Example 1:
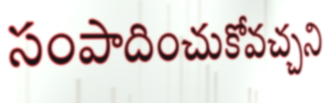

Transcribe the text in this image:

సంపాదించుకోవచ్చని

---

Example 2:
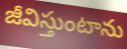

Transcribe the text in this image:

జీవిస్తుంటాను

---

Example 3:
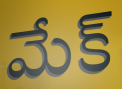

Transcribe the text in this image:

మేక్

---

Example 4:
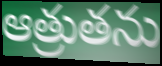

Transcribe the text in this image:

ఆత్రుతను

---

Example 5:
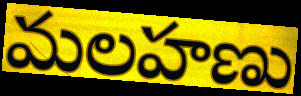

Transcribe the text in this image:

మలహణు